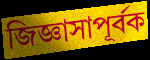
জিজ্ঞাসাপূর্বক